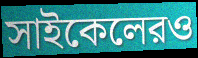
সাইকেলেরও